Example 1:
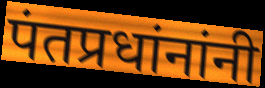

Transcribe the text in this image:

पंतप्रधांनांनी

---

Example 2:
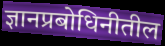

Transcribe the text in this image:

ज्ञानप्रबोधिनीतील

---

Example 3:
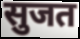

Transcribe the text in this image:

सुजत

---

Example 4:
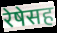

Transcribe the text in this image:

रेषेसह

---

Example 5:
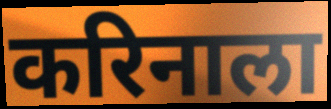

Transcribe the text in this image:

करिनाला